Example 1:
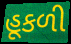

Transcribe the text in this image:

હૂકળી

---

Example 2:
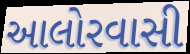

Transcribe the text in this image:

આલોરવાસી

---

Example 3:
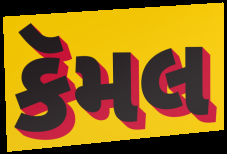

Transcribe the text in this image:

કૅમલ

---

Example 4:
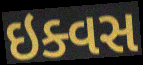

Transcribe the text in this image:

ઇક્વસ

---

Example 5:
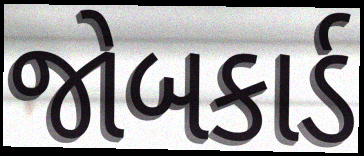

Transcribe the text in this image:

જોબકાર્ડ